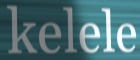
kelele